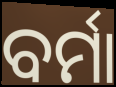
ବର୍ମା